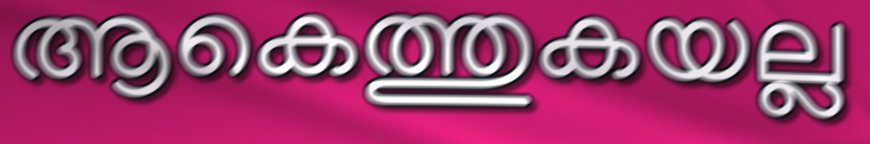
ആകെത്തുകയല്ല